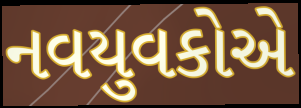
નવયુવકોએ